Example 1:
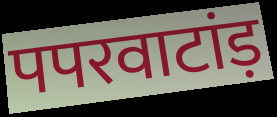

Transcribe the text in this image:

पपरवाटांड़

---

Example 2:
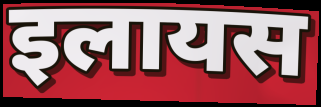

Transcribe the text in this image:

इलायस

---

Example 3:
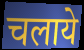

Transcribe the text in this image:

चलाये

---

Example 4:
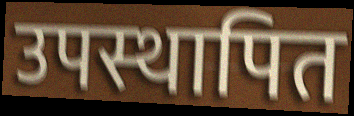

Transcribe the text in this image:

उपस्थापित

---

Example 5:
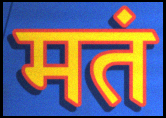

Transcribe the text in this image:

मतं